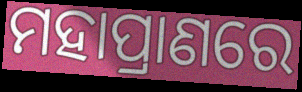
ମହାପ୍ରାଣରେ